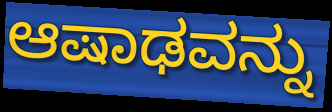
ಆಷಾಢವನ್ನು